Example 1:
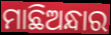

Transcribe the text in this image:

ମାଛିଅନ୍ଧାର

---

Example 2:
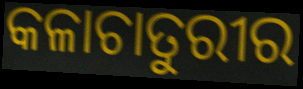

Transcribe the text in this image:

କଳାଚାତୁରୀର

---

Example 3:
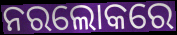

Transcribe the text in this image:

ନରଲୋକରେ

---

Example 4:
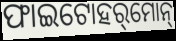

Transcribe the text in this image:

ଫାଇଟୋହର୍‌ମୋନ୍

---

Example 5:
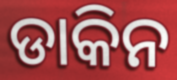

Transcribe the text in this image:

ଡାକିନ